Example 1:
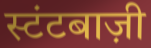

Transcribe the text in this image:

स्टंटबाज़ी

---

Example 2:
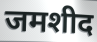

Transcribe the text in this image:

जमशीद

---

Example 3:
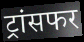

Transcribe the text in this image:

ट्रांसफर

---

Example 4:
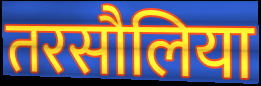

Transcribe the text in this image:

तरसौलिया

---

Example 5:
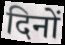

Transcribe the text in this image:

दिनों